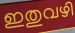
ഇതുവഴി